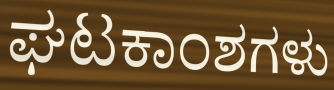
ಘಟಕಾಂಶಗಳು